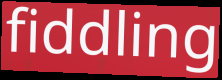
fiddling